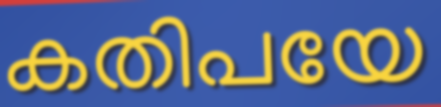
കതിപയേ